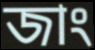
জাং